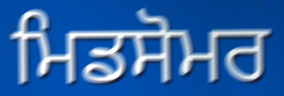
ਮਿਡਸੋਮਰ